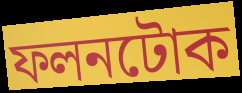
ফলনটোক